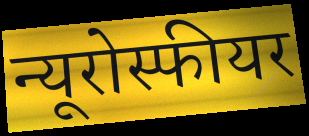
न्यूरोस्फीयर